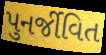
પુનર્જીવિત